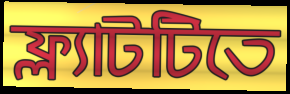
ফ্ল্যাটটিতে